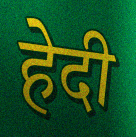
हेदी